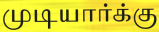
முடியார்க்கு